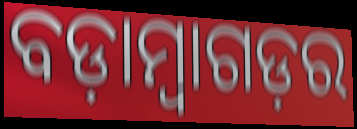
ବଡ଼ାମ୍ବାଗଡ଼ର